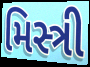
મિસ્ત્રી